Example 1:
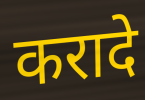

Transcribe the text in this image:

करादे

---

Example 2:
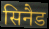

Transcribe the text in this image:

सिनैड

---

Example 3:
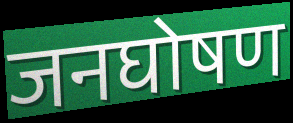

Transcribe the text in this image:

जनघोषण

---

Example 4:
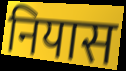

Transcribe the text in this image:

नियास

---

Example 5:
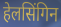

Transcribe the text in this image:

हेलसिंगिन